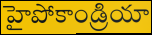
హైపోకాండ్రియా